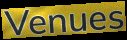
Venues